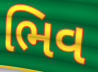
ભિવ